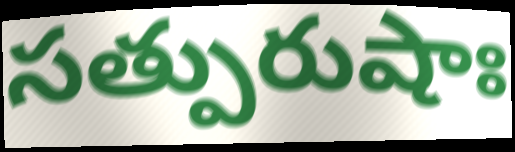
సత్పురుషాః